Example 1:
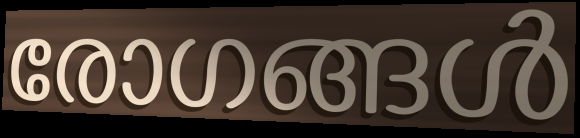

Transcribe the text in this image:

രോഗങ്ങൾ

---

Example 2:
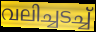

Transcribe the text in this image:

വലിച്ചടച്ച്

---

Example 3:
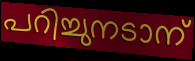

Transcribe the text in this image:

പറിച്ചുനടാന്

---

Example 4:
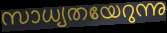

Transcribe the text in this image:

സാധ്യതയേറുന്നു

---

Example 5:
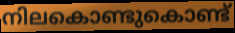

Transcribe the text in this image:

നിലകൊണ്ടുകൊണ്ട്